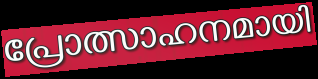
പ്രോത്സാഹനമായി